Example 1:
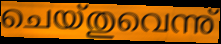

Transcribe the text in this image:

ചെയ്തുവെന്നു്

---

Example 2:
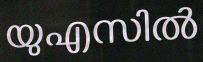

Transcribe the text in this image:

യുഎസിൽ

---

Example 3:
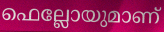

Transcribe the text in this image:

ഫെല്ലോയുമാണ്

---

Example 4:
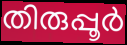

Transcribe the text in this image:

തിരുപ്പൂർ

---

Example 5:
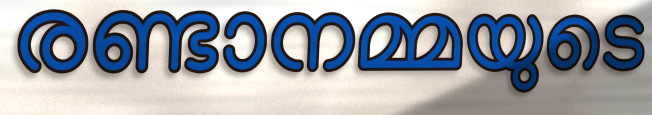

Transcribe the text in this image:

രണ്ടാനമ്മയുടെ